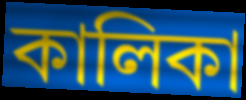
কালিকা